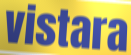
vistara